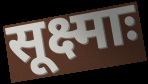
सूक्ष्माः